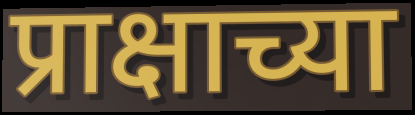
प्राक्षाच्या